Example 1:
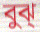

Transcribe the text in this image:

বুঝ্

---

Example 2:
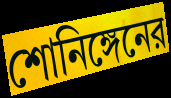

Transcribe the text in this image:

শোনিঙ্গেনের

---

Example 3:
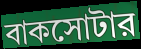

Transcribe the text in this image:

বাকসোটার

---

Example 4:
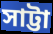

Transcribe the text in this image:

সাট্টা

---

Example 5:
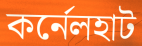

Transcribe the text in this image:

কর্নেলহাট